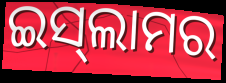
ଇସ୍‍ଲାମର